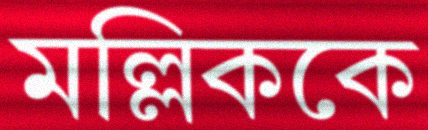
মল্লিককে